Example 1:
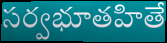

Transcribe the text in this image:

సర్వభూతహితే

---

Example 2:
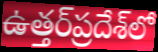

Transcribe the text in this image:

ఉత్తర్‌ప్రదేశ్‌లో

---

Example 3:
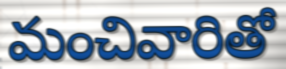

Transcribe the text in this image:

మంచివారితో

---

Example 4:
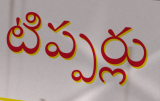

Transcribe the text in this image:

టిప్పర్లు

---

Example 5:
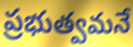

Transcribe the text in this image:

ప్రభుత్వమనే